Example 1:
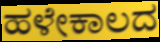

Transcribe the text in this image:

ಹಳೇಕಾಲದ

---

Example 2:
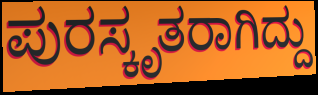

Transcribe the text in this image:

ಪುರಸ್ಕೃತರಾಗಿದ್ದು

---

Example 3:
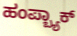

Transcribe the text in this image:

ಹಂಪ್ಬ್ಯಾಕ್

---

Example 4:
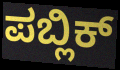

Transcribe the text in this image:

ಪಬ್ಲಿಕ್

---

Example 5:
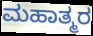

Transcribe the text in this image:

ಮಹಾತ್ಮರ